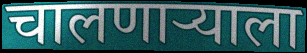
चालणाऱ्याला